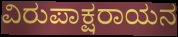
ವಿರುಪಾಕ್ಷರಾಯನ